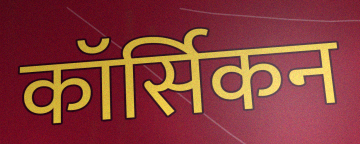
कॉर्सिकन